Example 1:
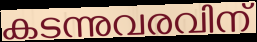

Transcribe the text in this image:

കടന്നുവരവിന്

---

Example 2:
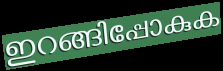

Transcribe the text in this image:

ഇറങ്ങിപ്പോകുക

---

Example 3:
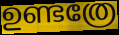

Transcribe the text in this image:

ഉണ്ടത്രേ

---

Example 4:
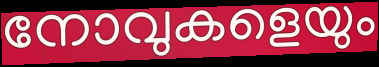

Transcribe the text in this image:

നോവുകളെയും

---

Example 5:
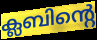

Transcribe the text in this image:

ക്ലബിന്റെ